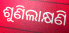
ଶୁଣିଲାକ୍ଷଣି